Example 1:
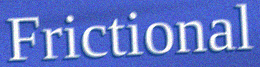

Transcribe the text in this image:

Frictional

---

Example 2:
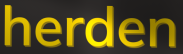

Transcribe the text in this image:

herden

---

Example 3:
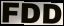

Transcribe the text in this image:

FDD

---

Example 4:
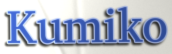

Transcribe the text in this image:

Kumiko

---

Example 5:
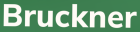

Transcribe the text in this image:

Bruckner